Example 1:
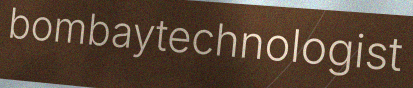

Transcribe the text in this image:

bombaytechnologist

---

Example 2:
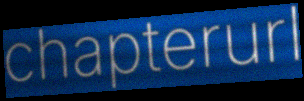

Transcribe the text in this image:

chapterurl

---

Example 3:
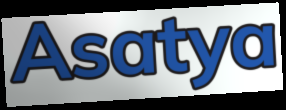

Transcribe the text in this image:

Asatya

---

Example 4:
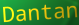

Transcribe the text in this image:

Dantan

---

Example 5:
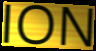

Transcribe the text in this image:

ION